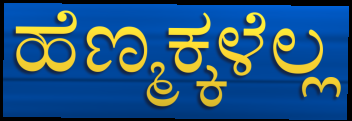
ಹೆಣ್ಮಕ್ಕಳೆಲ್ಲ